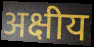
अक्षीय